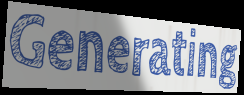
Generating